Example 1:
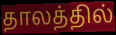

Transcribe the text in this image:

தாலத்தில்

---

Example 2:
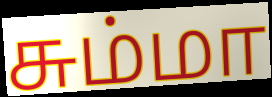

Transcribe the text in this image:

சும்மா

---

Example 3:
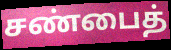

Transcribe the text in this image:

சண்பைத்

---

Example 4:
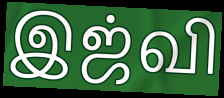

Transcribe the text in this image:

இஜ்வி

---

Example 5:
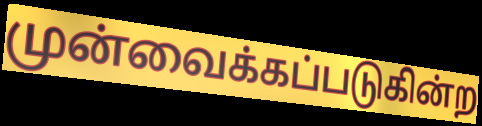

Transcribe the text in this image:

முன்வைக்கப்படுகின்ற